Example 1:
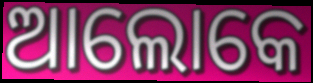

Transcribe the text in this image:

ଆଲୋକେ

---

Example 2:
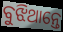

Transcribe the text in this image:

ବୁଝିଥାନ୍ତେ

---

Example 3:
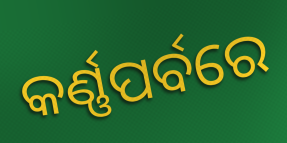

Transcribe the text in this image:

କର୍ଣ୍ଣପର୍ବରେ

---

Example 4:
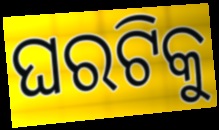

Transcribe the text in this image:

ଘରଟିକୁ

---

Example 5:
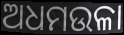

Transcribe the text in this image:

ଅଧମଉଳା